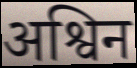
अश्विन